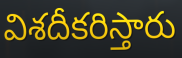
విశదీకరిస్తారు